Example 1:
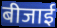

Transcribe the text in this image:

बीजाई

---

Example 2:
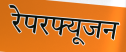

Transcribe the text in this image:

रेपरफ्यूजन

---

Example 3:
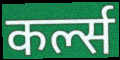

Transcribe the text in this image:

कर्ल्स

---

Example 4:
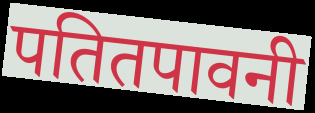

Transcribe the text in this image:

पतितपावनी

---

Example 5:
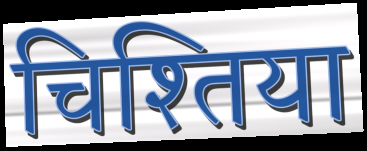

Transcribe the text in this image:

चिश्तिया